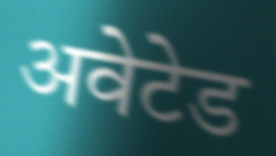
अवेटेड